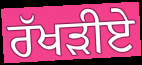
ਰੱਖੜੀਏ